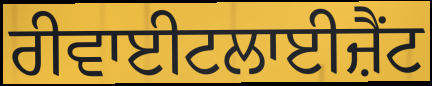
ਰੀਵਾਈਟਲਾਈਜ਼ੈਂਟ